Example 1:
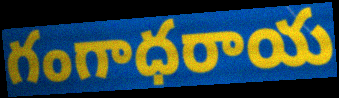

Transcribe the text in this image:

గంగాధరాయ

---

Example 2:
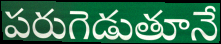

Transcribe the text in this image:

పరుగెడుతూనే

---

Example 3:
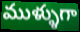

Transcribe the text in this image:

ముళ్ళుగా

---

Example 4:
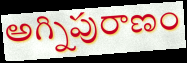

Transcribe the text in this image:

అగ్నిపురాణం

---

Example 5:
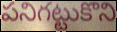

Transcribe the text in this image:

పనిగట్టుకొని